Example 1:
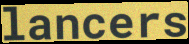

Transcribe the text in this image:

lancers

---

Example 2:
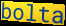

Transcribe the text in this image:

bolta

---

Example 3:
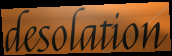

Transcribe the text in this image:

desolation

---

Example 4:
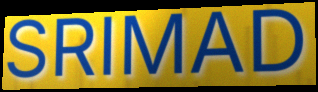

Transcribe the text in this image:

SRIMAD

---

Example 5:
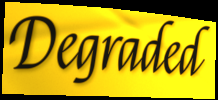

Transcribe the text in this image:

Degraded